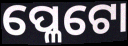
ପ୍ଳେଟୋ